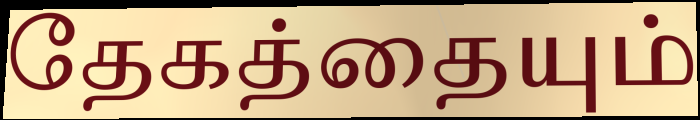
தேகத்தையும்